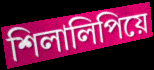
শিলালিপিয়ে